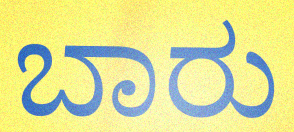
ಬಾರು